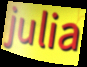
julia